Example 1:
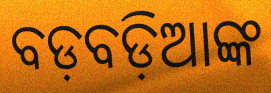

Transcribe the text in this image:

ବଡ଼ବଡ଼ିଆଙ୍କ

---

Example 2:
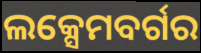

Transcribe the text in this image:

ଲକ୍ସେମବର୍ଗର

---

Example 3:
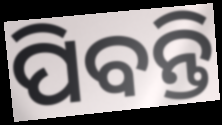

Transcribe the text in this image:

ପିବନ୍ତି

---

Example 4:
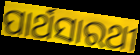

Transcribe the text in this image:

ପାର୍ଥସାରଥୀ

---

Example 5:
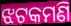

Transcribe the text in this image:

ଝଟକମଣି